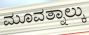
ಮೂವತ್ನಾಲ್ಕು